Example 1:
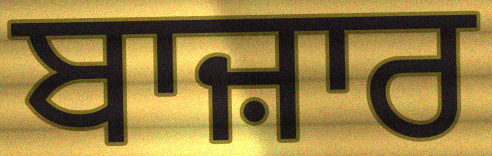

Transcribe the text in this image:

ਬਾਜ਼ਾਰ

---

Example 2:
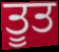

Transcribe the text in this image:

ਤੂਤ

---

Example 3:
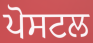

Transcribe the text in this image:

ਪੋਸਟਲ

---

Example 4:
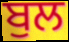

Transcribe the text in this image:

ਬੁਲ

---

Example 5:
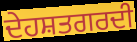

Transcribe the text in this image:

ਦੇਹਸ਼ਤਗਰਦੀ